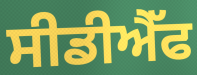
ਸੀਡੀਐੱਫ